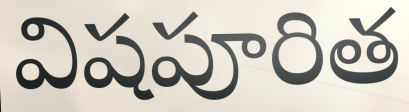
విషపూరిత